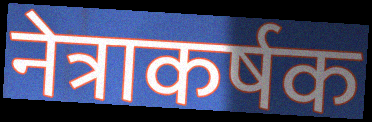
नेत्राकर्षक